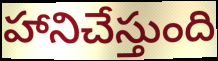
హానిచేస్తుంది